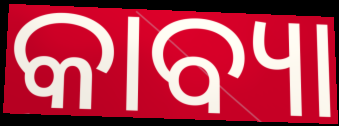
କାବ୍ୟା